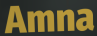
Amna